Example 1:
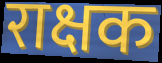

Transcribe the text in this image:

राक्षक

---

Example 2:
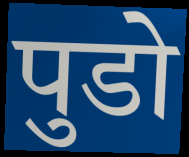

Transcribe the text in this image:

पुडो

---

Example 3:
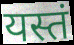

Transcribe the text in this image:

यस्तं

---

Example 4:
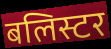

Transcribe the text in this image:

बलिस्टर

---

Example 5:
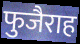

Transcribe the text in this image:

फुजैराह